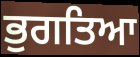
ਭੁਗਤਿਆ